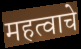
महत्वाचे